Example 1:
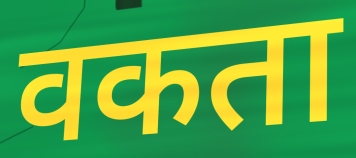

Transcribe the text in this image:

वकता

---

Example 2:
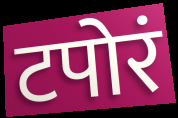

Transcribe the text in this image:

टपोरं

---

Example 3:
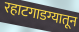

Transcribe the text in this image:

रहाटगाडग्यातून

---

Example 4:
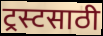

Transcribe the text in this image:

ट्रस्टसाठी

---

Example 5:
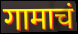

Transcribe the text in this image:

गामाचं